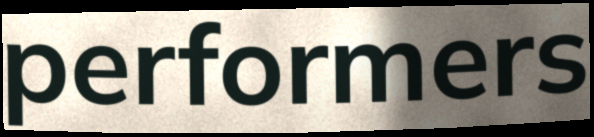
performers